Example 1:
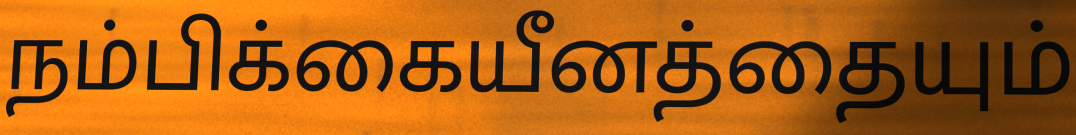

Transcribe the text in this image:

நம்பிக்கையீனத்தையும்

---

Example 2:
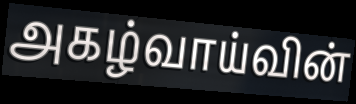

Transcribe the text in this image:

அகழ்வாய்வின்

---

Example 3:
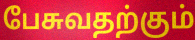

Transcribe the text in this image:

பேசுவதற்கும்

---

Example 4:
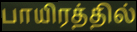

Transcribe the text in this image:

பாயிரத்தில்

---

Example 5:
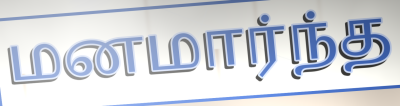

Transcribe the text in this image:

மனமார்ந்த